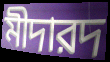
মীদারদ